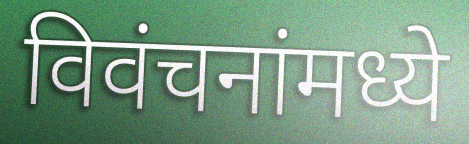
विवंचनांमध्ये